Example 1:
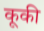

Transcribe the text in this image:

कूकी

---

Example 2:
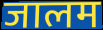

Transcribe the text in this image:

जालम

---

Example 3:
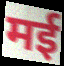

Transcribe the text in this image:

मई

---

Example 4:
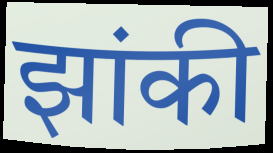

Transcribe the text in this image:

झांकी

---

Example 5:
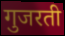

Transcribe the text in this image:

गुजरती